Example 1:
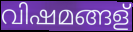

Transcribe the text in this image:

വിഷമങ്ങള്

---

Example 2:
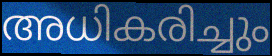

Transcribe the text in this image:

അധികരിച്ചും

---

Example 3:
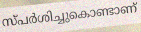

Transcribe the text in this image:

സ്പർശിച്ചുകൊണ്ടാണ്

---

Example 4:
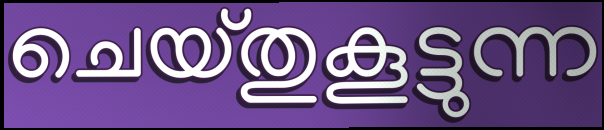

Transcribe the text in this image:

ചെയ്തുകൂട്ടുന്ന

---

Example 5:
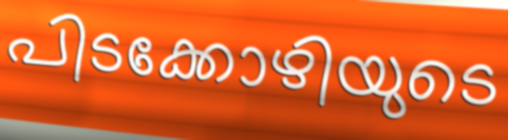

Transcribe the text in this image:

പിടക്കോഴിയുടെ